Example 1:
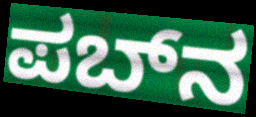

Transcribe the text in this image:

ಪಬ್‌ನ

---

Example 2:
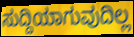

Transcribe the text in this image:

ಸುದ್ದಿಯಾಗುವುದಿಲ್ಲ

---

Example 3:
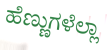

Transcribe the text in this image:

ಹೆಣ್ಣುಗಳೆಲ್ಲಾ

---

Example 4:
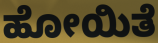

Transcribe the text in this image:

ಹೋಯಿತೆ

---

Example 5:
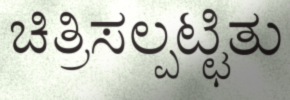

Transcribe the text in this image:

ಚಿತ್ರಿಸಲ್ಪಟ್ಟಿತು